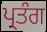
ਪ੍ਰਤੰਗ